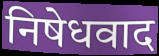
निषेधवाद